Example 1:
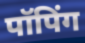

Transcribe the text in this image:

पॉपिंग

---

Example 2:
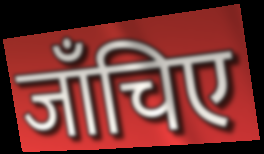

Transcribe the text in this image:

जाँचिए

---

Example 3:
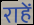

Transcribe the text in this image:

राहें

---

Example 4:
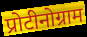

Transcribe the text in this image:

प्रोटीनोग्राम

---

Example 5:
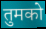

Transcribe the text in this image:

तुमको